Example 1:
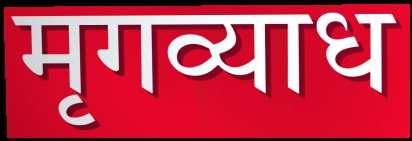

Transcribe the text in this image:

मृगव्याध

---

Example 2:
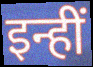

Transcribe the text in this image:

इन्हीं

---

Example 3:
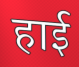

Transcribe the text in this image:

हाई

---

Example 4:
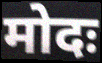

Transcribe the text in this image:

मोदः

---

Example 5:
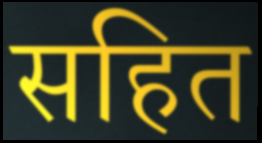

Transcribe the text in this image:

सहित